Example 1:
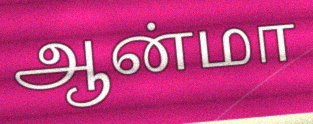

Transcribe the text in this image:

ஆன்மா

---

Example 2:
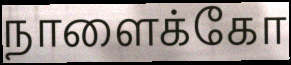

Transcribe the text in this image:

நாளைக்கோ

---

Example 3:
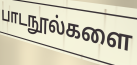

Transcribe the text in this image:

பாடநூல்களை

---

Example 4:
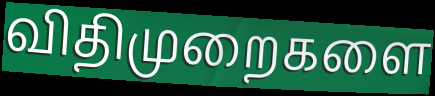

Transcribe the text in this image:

விதிமுறைகளை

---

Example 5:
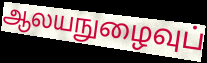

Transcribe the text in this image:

ஆலயநுழைவுப்